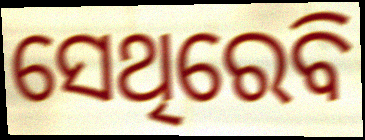
ସେଥିରେବି